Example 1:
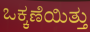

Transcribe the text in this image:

ಒಕ್ಕಣೆಯಿತ್ತು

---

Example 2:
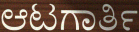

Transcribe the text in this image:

ಆಟಗಾರ್ತಿ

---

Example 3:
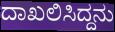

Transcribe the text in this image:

ದಾಖಲಿಸಿದ್ದನು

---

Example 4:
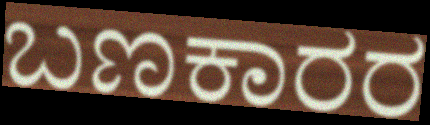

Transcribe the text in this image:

ಬಣಕಾರರ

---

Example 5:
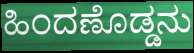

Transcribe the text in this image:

ಹಿಂದಣೊಡ್ಡನು